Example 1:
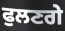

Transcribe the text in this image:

ਫੁਲਣਗੇ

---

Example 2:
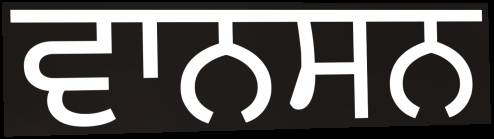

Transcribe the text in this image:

ਵਾਨਸਨ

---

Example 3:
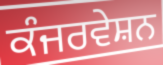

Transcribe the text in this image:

ਕੰਜਰਵੇਸ਼ਨ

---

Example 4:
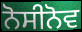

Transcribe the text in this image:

ਨੋਸੀਨੋਵ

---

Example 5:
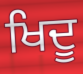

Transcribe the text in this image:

ਖਿਦੂ